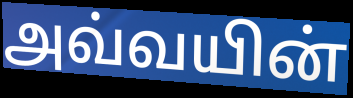
அவ்வயின்